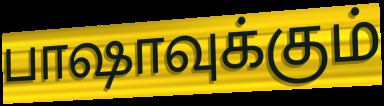
பாஷாவுக்கும்